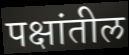
पक्षांतील